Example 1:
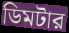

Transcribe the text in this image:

ডিমটার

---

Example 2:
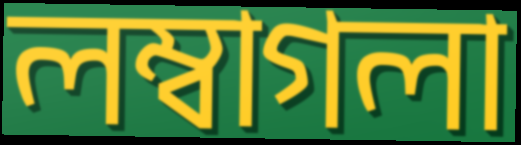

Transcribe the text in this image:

লম্বাগলা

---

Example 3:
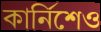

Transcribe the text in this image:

কার্নিশেও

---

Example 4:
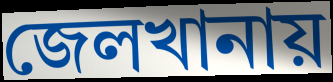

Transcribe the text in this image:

জেলখানায়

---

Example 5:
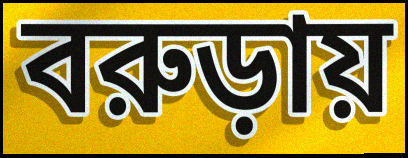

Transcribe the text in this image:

বরুড়ায়